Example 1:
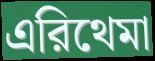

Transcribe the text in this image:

এরিথেমা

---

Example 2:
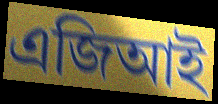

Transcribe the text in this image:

এজিআই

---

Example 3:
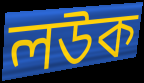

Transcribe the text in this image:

লউক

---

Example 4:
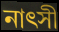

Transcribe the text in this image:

নাৎসী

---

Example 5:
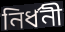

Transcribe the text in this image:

নির্ধনী